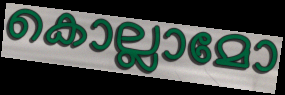
കൊല്ലാമോ